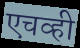
एचव्ही